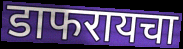
डाफरायचा